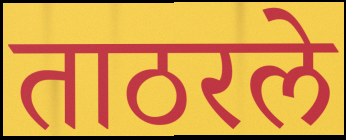
ताठरले